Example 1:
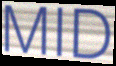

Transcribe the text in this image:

MID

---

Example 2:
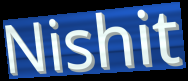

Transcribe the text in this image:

Nishit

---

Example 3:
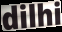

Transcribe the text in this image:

dilhi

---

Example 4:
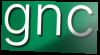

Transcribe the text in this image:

gnc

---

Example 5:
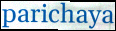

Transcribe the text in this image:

parichaya